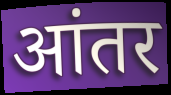
आंतर